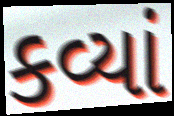
કવ્યાં